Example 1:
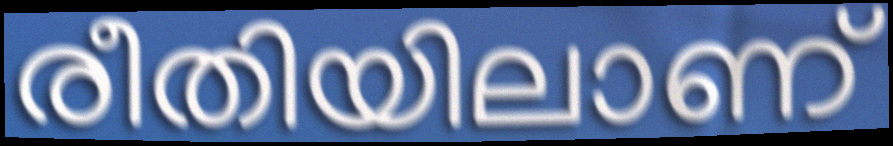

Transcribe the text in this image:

രീതിയിലാണ്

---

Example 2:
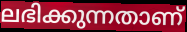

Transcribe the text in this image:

ലഭിക്കുന്നതാണ്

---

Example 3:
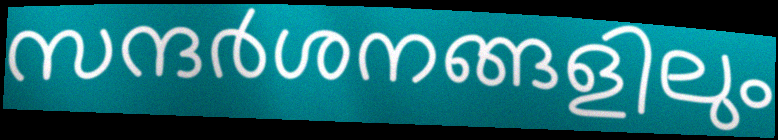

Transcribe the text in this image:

സന്ദർശനങ്ങളിലും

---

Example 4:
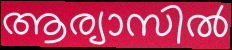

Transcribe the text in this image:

ആര്യാസിൽ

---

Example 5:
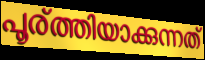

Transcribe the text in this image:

പൂര്ത്തിയാക്കുന്നത്